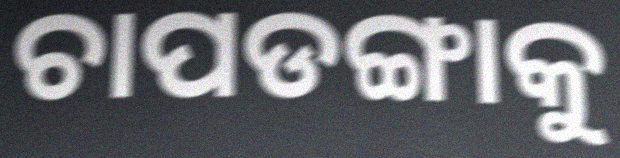
ଚାପଡଙ୍ଗାକୁ